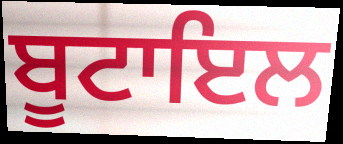
ਬੂਟਾਇਲ